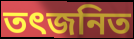
তৎজনিত